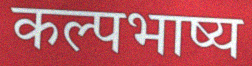
कल्पभाष्य